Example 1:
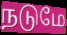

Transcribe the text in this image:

நடுமே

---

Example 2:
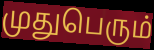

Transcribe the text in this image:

முதுபெரும்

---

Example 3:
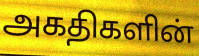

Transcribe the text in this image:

அகதிகளின்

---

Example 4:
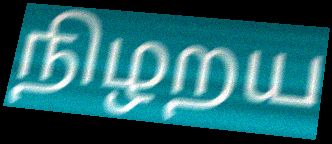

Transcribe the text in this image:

நிழறய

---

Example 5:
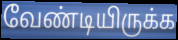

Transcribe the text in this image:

வேண்டியிருக்க